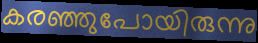
കരഞ്ഞുപോയിരുന്നു